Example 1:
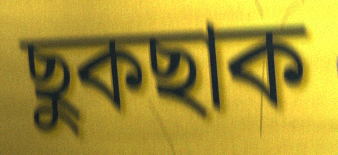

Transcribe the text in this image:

ছুকছাক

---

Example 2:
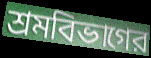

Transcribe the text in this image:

শ্রমবিভাগের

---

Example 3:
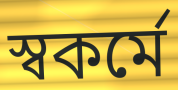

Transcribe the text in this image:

স্বকর্মে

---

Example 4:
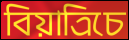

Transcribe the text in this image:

বিয়াত্রিচে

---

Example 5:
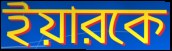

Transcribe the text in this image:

ইয়ারকে